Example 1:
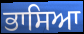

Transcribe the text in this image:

ਭਾਸਿਆ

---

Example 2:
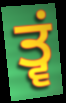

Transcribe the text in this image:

ਤ੍ਵਂ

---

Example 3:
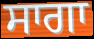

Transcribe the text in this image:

ਸਾਗਾ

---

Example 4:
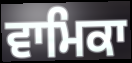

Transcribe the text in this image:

ਵਾਮਿਕਾ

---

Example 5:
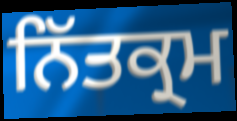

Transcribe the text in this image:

ਨਿੱਤਕ੍ਰਮ